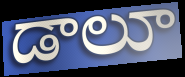
డాలూ